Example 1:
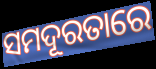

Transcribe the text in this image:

ସମଦୂରତାରେ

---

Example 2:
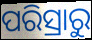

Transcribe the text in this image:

ପରିସ୍ରାରୁ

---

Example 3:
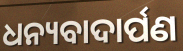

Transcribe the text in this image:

ଧନ୍ୟବାଦାର୍ପଣ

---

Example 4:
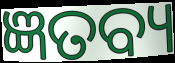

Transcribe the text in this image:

ଜ୍ଞତବ୍ୟ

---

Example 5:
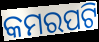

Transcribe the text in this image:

କମରପଟି